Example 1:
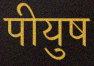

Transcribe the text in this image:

पीयुष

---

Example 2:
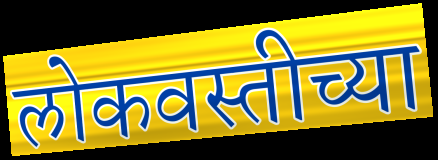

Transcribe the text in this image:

लोकवस्तीच्या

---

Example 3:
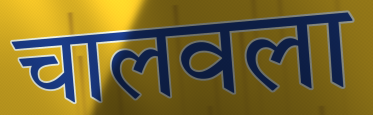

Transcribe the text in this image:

चालवला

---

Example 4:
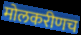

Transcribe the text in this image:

मोलकरीणच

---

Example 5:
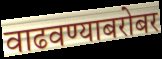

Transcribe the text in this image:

वाढवण्याबरोबर